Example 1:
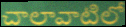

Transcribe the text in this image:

చాలావాటిలో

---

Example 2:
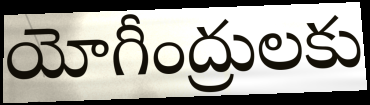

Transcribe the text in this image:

యోగీంద్రులకు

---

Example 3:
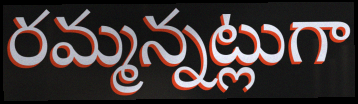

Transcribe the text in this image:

రమ్మన్నట్లుగా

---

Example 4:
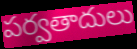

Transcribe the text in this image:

పర్వతాదులు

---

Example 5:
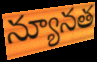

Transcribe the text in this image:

న్యూనత